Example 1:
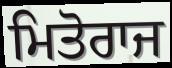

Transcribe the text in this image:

ਮਿਤੋਰਾਜ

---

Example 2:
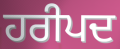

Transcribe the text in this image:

ਹਰੀਪਦ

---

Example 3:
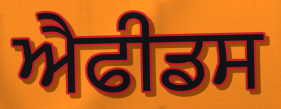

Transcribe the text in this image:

ਐਫੀਡਸ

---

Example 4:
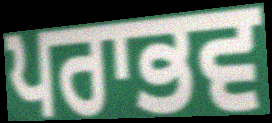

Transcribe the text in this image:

ਪਰਾਭਵ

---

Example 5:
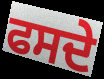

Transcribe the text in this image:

ਫਸਦੇ